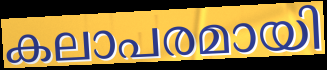
കലാപരമായി